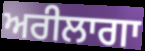
ਅਰੀਲਾਗਾ